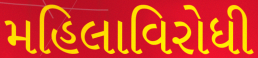
મહિલાવિરોધી